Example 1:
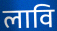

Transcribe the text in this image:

लावि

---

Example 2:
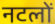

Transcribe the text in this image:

नटलों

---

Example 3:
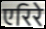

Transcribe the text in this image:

एरिरे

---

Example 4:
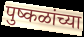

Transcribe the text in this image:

पुष्कळांच्या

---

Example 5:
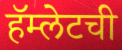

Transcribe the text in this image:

हॅम्लेटची